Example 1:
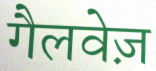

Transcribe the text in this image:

गैलवेज़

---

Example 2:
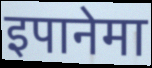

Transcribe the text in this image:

इपानेमा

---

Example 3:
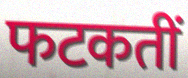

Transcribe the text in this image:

फटकतीं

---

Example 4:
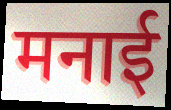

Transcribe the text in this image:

मनाई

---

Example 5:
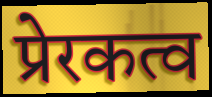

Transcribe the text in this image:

प्रेरकत्व